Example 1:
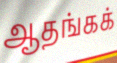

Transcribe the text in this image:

ஆதங்கக்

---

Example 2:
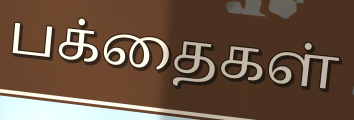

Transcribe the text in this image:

பக்தைகள்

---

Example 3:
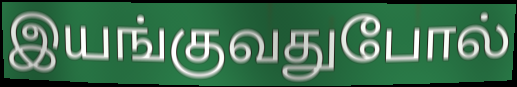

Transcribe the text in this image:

இயங்குவதுபோல்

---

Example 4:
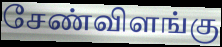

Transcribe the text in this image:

சேண்விளங்கு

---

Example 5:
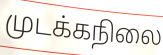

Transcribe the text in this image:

முடக்கநிலை